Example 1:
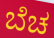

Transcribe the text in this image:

ಬೆಚ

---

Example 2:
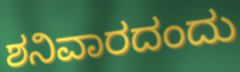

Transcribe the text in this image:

ಶನಿವಾರದಂದು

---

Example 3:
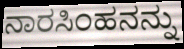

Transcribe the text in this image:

ನಾರಸಿಂಹನನ್ನು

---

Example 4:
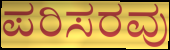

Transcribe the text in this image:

ಪರಿಸರವು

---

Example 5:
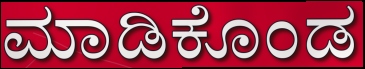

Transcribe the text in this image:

ಮಾಡಿಕೊಂಡ